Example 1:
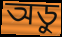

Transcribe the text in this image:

অডু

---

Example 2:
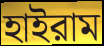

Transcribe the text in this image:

হাইরাম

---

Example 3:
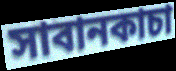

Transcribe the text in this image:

সাবানকাচা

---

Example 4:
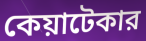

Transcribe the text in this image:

কেয়াটেকার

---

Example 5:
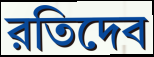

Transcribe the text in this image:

রতিদেব